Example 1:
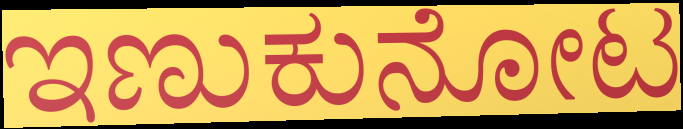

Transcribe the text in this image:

ಇಣುಕುನೋಟ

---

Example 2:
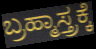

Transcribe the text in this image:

ಬ್ರಹ್ಮಾಸ್ತ್ರಕ್ಕೆ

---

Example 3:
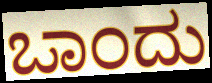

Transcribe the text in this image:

ಒಾಂದು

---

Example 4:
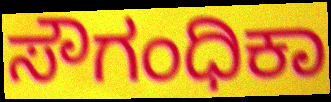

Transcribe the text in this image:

ಸೌಗಂಧಿಕಾ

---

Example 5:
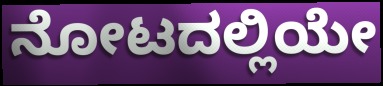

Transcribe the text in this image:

ನೋಟದಲ್ಲಿಯೇ